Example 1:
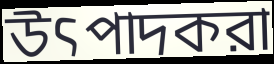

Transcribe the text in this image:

উৎপাদকরা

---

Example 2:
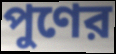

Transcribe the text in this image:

পুণের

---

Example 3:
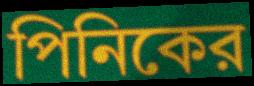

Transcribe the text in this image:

পিনিকের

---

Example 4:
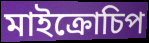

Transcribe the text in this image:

মাইক্রোচিপ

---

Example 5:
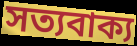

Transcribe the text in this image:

সত্যবাক্য